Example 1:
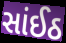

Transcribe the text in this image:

સાંઈઠ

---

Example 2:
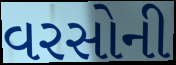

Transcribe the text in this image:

વરસોની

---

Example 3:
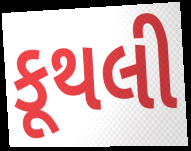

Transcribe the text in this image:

કૂથલી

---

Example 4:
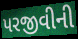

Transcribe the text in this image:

પરજીવીની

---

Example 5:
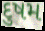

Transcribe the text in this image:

દુષમ